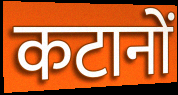
कटानों